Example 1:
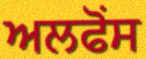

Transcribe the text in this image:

ਅਲਫੋਂਸ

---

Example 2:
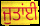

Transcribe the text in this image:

ਜੁਤਾਂਈ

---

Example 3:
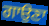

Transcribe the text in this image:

ਗਾਉਣਾ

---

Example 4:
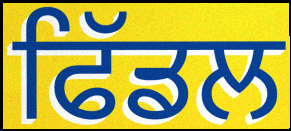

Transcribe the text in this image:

ਫਿੱਡਲ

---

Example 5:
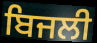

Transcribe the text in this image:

ਬਿਜਲੀ